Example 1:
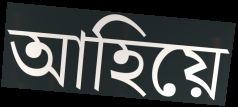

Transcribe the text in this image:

আহিয়ে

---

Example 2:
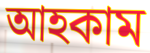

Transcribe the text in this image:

আহকাম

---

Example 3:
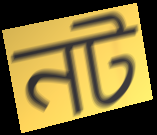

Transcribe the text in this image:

নট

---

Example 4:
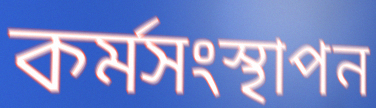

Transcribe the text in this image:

কৰ্মসংস্থাপন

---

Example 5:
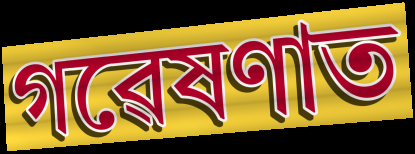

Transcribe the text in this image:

গৱেষণাত